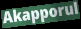
Akapporul